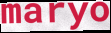
maryo